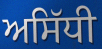
ਅਸਿੱਧੀ